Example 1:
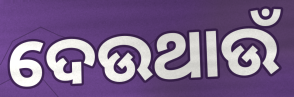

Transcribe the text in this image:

ଦେଉଥାଉଁ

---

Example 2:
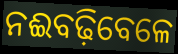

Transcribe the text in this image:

ନଈବଢ଼ିବେଳେ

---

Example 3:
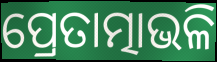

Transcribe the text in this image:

ପ୍ରେତାତ୍ମାଭଳି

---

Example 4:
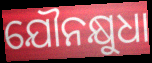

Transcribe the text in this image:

ଯୌନକ୍ଷୁଧା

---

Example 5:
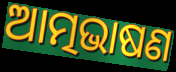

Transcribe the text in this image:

ଆତ୍ମଭାଷଣ